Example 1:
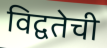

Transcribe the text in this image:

विद्वतेची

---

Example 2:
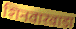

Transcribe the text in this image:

शिनवारवाडा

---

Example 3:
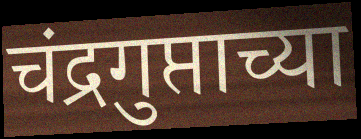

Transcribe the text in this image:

चंद्रगुप्ताच्या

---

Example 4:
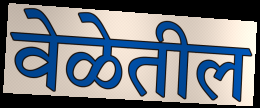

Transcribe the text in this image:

वेळेतील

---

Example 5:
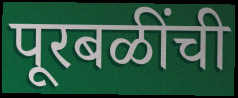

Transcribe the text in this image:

पूरबळींची